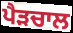
ਪੈੜਚਾਲ